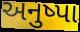
અનુષ્પા